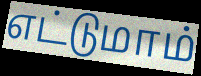
எட்டுமாம்